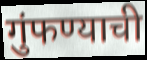
गुंफण्याची